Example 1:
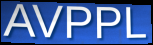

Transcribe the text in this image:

AVPPL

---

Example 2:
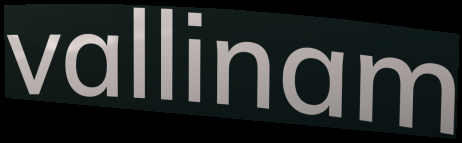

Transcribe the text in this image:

vallinam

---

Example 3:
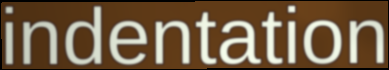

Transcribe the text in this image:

indentation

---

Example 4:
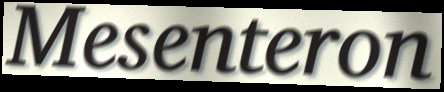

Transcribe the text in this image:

Mesenteron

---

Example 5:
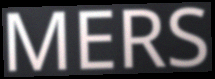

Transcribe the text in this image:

MERS